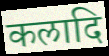
कलादि